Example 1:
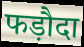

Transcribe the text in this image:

फड़ौदा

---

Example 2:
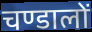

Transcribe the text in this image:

चण्डालों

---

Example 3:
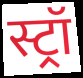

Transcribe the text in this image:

स्ट्रॉ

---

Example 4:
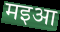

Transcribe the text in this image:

मइआ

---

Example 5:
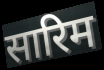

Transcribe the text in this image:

सारिम